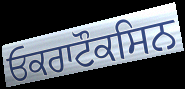
ਓਕਰਾਟੌਕਸਿਨ